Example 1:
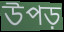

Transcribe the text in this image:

উপড়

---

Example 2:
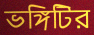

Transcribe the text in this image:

ভঙ্গিটির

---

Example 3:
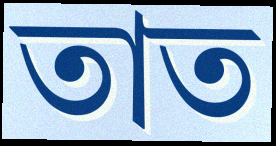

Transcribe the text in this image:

তাত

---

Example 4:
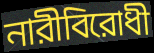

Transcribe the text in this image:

নারীবিরোধী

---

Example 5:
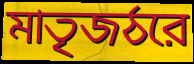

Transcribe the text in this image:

মাতৃজঠরে